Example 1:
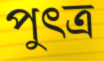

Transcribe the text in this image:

পুৎত্র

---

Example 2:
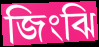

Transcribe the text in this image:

জিংঝি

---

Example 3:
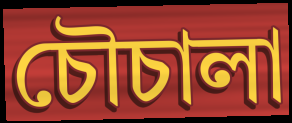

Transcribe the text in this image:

চৌচালা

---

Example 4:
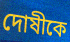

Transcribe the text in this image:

দোষীকে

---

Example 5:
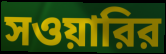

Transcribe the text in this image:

সওয়ারির